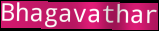
Bhagavathar